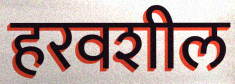
हरवशील